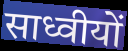
साध्वीयों